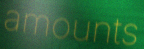
amounts